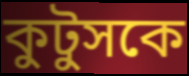
কুটুসকে